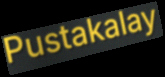
Pustakalay